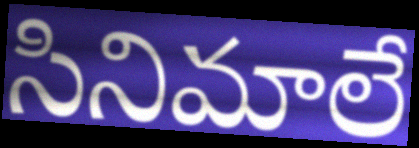
సినిమాలే